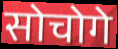
सोचोगे